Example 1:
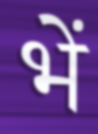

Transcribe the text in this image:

भें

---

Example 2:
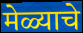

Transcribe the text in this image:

मेळ्याचे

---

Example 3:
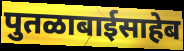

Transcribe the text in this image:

पुतळाबाईसाहेब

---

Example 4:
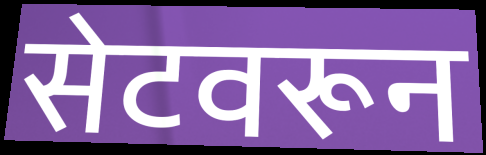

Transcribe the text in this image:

सेटवरून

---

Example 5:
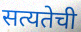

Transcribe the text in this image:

सत्यतेची